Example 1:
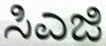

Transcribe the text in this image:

ಸಿಎಜಿ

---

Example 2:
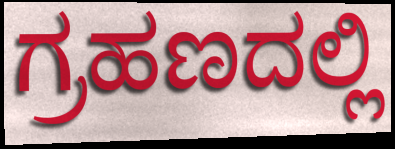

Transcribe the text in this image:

ಗ್ರಹಣದಲ್ಲಿ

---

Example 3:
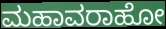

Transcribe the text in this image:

ಮಹಾವರಾಹೋ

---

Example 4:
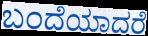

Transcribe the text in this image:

ಬಂದೆಯಾದರೆ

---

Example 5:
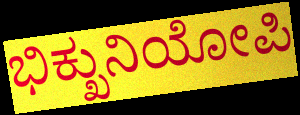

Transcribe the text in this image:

ಭಿಕ್ಖುನಿಯೋಪಿ